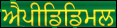
ਐਪੀਡਿਡਿਮਲ